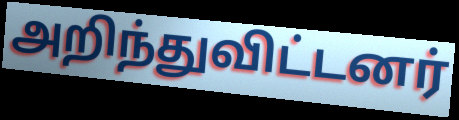
அறிந்துவிட்டனர்